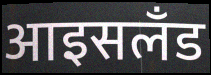
आइसलँड